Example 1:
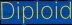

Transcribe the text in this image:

Diploid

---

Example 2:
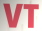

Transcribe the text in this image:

VT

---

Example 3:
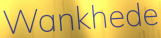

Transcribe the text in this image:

Wankhede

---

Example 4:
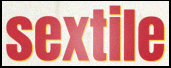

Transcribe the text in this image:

sextile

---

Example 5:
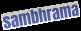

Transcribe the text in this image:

sambhrama